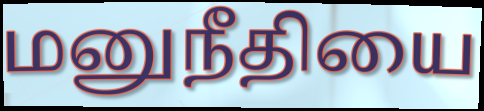
மனுநீதியை